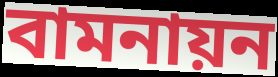
বামনায়ন